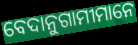
ବେଦାନୁଗାମୀମାନେ